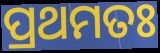
ପ୍ରଥମତଃ